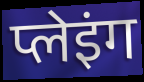
प्लेइंग